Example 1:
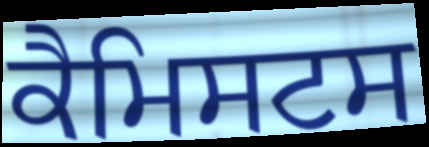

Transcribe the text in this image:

ਕੈਮਿਸਟਸ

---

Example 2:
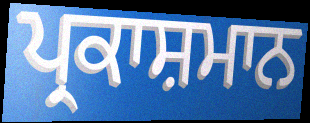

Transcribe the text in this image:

ਪ੍ਰਕਾਸ਼ਮਾਨ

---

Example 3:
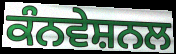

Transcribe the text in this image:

ਕੰਨਵੇਸ਼ਨਲ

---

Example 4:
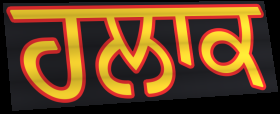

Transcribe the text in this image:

ਹਲਾਕ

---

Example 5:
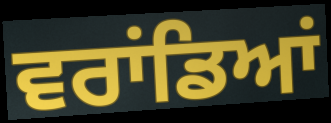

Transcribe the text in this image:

ਵਰਾਂਡਿਆਂ